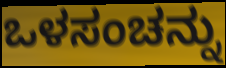
ಒಳಸಂಚನ್ನು